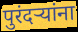
पुरंदऱ्यांना